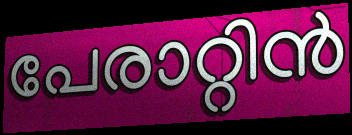
പേരാറ്റിൻ